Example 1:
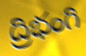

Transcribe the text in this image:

ద్రిభంగి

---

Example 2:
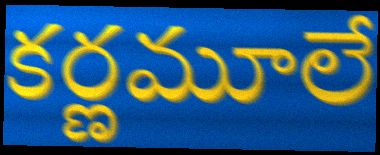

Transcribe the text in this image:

కర్ణమూలే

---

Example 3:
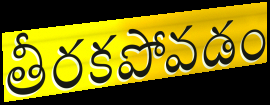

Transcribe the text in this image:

తీరకపోవడం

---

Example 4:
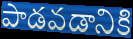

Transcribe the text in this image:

పాడవడానికి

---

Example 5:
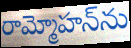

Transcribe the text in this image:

రామ్మోహన్‌ను